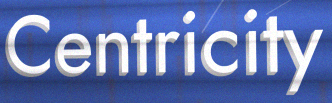
Centricity